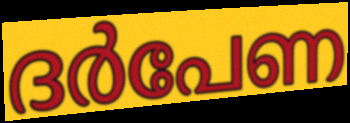
ദർപേണ